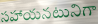
సహాయనటునిగా